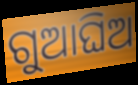
ଗୁଆଘିଅ